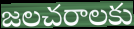
జలచరాలకు